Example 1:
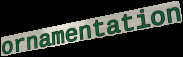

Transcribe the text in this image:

ornamentation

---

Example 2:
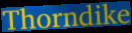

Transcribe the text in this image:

Thorndike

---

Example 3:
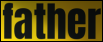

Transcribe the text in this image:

father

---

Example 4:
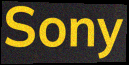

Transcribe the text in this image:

Sony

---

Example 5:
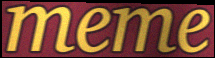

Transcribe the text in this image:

meme